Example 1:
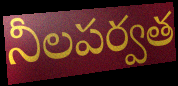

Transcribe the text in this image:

నీలపర్వత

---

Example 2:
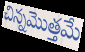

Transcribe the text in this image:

చిన్నమొత్తమే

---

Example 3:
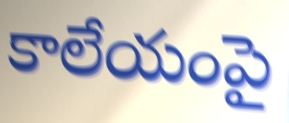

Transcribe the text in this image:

కాలేయంపై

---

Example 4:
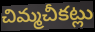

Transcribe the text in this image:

చిమ్మచీకట్లు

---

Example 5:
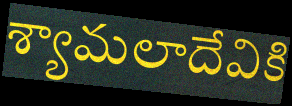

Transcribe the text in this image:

శ్యామలాదేవికి